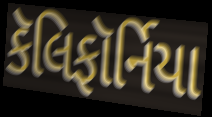
કૅલિફૉર્નિયા